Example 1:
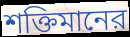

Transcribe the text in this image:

শক্তিমানের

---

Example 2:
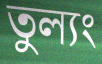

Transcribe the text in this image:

তুল্যং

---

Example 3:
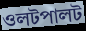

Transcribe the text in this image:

ওলটপালট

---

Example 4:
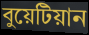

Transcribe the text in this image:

বুয়েটিয়ান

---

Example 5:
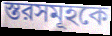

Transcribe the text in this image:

স্তরসমূহকে